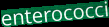
enterococci